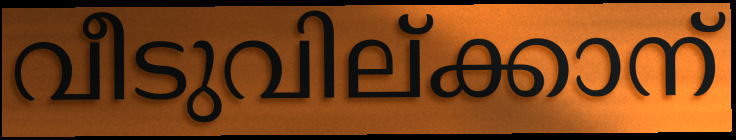
വീടുവില്ക്കാന്